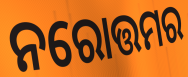
ନରୋତ୍ତମର